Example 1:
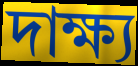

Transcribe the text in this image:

দাক্ষ্য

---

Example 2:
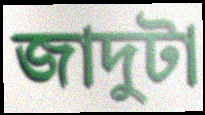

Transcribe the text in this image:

জাদুটা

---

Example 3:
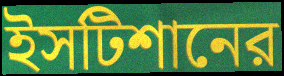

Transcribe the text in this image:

ইসটিশানের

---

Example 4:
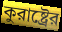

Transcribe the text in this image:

কুরাষ্ট্রের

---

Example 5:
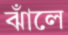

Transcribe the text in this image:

ঝাঁলে